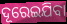
ଦୂରେଇଯିବା